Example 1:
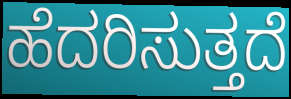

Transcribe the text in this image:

ಹೆದರಿಸುತ್ತದೆ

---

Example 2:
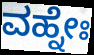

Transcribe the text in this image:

ವಹ್ನೇಃ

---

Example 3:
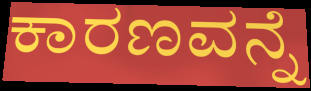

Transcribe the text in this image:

ಕಾರಣವನ್ನೆ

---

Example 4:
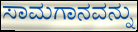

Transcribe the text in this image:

ಸಾಮಗಾನವನ್ನು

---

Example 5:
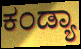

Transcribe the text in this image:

ಕಂಡ್ಯಾ